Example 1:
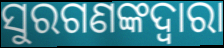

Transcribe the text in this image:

ସୁରଗଣଙ୍କଦ୍ୱାରା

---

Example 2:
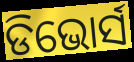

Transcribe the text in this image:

ଡିଭୋର୍ସ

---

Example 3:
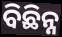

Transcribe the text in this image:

ବିଛିନ୍ନ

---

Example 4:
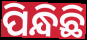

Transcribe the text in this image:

ପିନ୍ଧିଛି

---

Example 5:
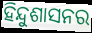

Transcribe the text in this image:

ହିନ୍ଦୁଶାସନର